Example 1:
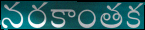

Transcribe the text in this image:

నరకాంతక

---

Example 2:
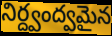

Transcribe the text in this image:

నిర్ద్వంద్వమైన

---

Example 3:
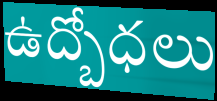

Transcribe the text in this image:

ఉద్బోధలు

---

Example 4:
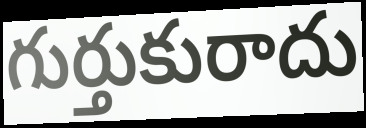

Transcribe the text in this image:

గుర్తుకురాదు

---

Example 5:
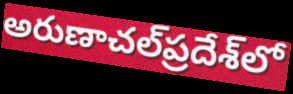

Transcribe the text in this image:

అరుణాచల్‌ప్రదేశ్‌లో